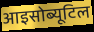
आइसोब्यूटिल